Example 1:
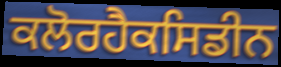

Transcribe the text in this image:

ਕਲੋਰਹੈਕਸਿਡੀਨ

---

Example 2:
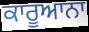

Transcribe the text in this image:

ਕਾਰੂਆਨਾ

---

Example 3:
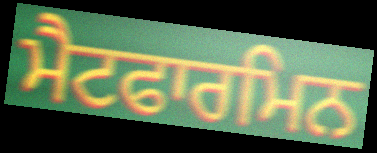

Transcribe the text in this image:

ਮੈਟਫਾਰਮਿਨ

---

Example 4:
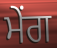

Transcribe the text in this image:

ਮੇਂਗ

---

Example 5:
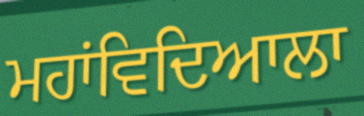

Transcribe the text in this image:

ਮਹਾਂਵਿਦਿਆਲਾ